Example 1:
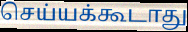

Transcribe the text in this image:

செய்யக்கூடாது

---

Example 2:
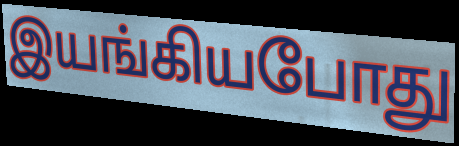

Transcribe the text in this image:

இயங்கியபோது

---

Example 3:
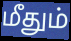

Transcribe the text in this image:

மீதும்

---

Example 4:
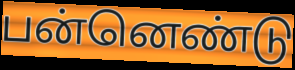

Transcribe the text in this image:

பன்னெண்டு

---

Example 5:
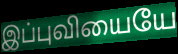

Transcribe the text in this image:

இப்புவியையே